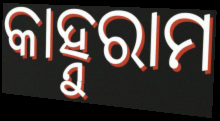
କାହ୍ନୁରାମ